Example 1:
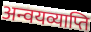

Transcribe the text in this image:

अन्वयव्याप्ति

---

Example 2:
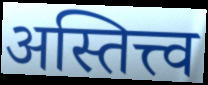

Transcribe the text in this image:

अस्तित्त्व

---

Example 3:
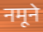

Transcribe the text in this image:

नमूने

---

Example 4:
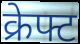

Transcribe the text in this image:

क्रेफ्ट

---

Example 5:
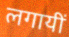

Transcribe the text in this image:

लगायीं